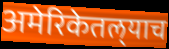
अमेरिकेतल्याच